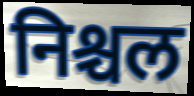
निश्चल